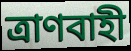
ত্রাণবাহী